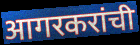
आगरकरांची